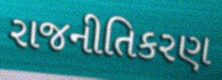
રાજનીતિકરણ